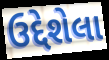
ઉદ્દેશેલા